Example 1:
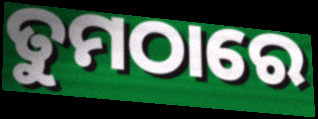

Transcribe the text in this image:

ତୁମଠାରେ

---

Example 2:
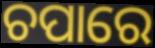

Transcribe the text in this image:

ଚପାରେ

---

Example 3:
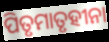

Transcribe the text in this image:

ପିତୃମାତୃହୀନା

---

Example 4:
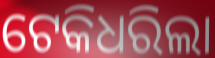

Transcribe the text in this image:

ଟେକିଧରିଲା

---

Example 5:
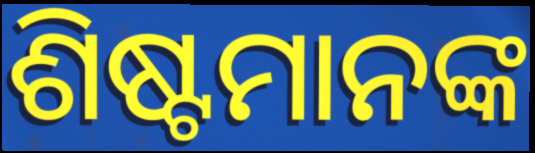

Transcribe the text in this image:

ଶିଷ୍ଟମାନଙ୍କ